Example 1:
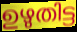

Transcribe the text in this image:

ഉഴുതിട്ട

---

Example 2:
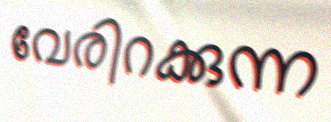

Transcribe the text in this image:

വേരിറക്കുന്ന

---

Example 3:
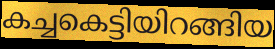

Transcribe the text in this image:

കച്ചകെട്ടിയിറങ്ങിയ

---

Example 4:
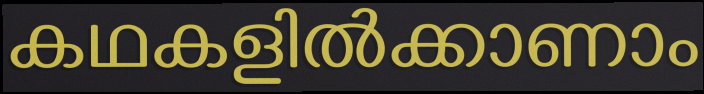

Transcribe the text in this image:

കഥകളിൽക്കാണാം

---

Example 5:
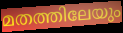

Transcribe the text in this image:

മതത്തിലേയും